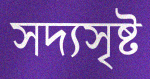
সদ্যসৃষ্ট